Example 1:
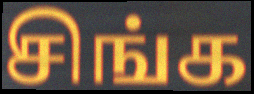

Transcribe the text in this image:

சிங்க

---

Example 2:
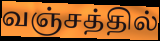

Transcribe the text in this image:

வஞ்சத்தில்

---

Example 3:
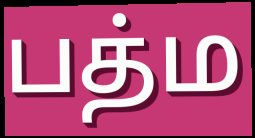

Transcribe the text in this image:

பத்ம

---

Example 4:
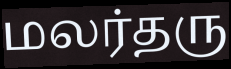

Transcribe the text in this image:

மலர்தரு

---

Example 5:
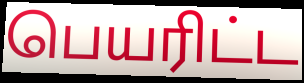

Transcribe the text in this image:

பெயரிட்ட